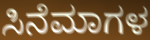
ಸಿನೆಮಾಗಳ